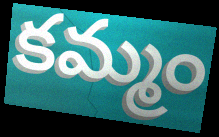
కమ్మం